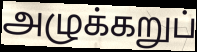
அழுக்கறுப்